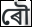
ৰৌ